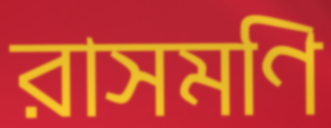
রাসমণি